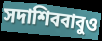
সদাশিববাবুও